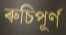
ৰুচিপূৰ্ণ